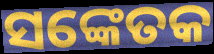
ସଙ୍କେତକ